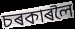
চৰকাৰলৈ